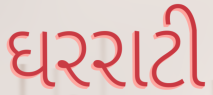
ઘરરાટી